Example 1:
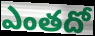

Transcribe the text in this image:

ఎంతదో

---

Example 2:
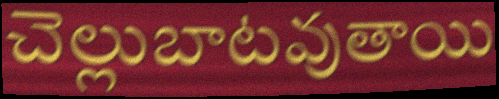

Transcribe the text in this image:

చెల్లుబాటవుతాయి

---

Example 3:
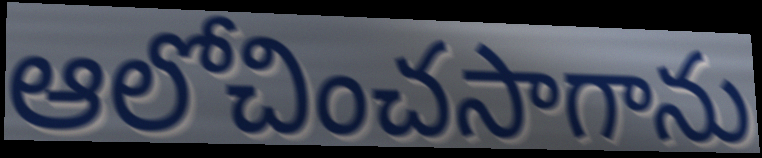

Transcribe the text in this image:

ఆలోచించసాగాను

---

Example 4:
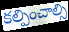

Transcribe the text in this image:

కల్పించాల్సి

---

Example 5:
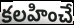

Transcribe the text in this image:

కలహించే